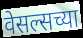
वेसल्सच्या